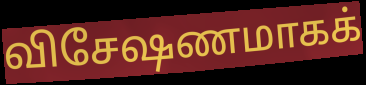
விசேஷணமாகக்